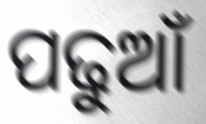
ପଢୁଆଁ